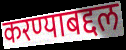
करण्याबद्दल